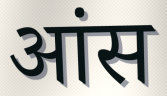
आंस